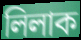
লিলাক